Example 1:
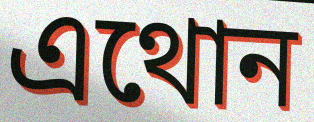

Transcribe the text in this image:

এথোন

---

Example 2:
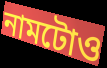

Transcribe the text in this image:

নামটোও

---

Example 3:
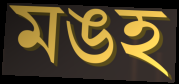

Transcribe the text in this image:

মঙহ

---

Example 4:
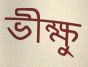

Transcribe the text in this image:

ভীক্ষু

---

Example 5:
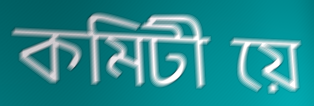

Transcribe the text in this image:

কমিটীয়ে